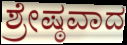
ಶ್ರೇಷ್ಠವಾದ